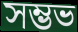
সম্ভভ